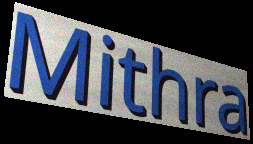
Mithra